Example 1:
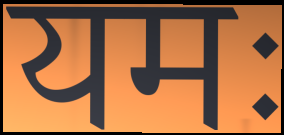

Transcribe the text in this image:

यमः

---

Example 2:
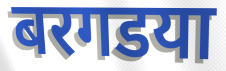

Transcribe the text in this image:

बरगडया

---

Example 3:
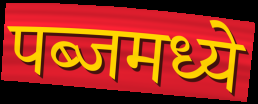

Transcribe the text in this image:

पब्जमध्ये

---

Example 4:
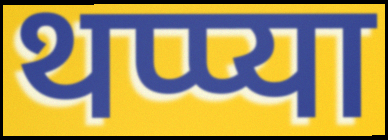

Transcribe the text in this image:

थप्प्या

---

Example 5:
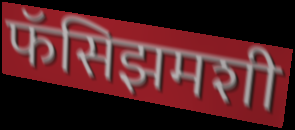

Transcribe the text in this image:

फॅसिझमशी